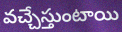
వచ్చేస్తుంటాయి